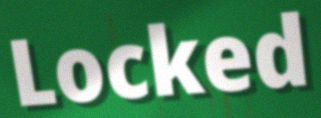
Locked